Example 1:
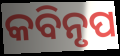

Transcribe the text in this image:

କବିନୃପ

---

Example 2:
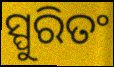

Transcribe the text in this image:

ସ୍ପୁରିତଂ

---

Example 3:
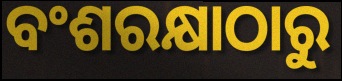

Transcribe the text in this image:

ବଂଶରକ୍ଷାଠାରୁ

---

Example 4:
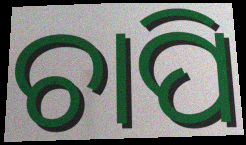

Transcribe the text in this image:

ଚାପି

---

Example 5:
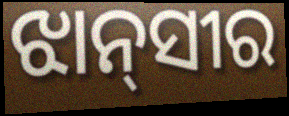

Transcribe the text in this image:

ଝାନ୍‌ସୀର